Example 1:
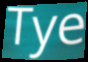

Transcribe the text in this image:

Tye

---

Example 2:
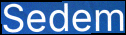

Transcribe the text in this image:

Sedem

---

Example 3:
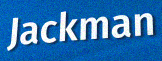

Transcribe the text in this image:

Jackman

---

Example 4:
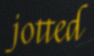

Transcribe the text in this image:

jotted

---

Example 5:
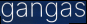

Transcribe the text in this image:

gangas